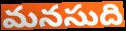
మనసుది